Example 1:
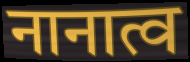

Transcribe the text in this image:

नानात्व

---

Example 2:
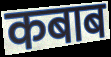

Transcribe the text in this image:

कबाब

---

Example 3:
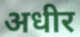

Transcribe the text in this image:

अधीर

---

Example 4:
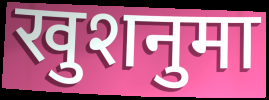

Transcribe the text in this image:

खुशनुमा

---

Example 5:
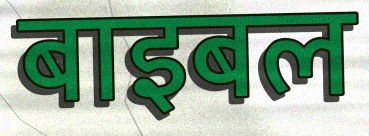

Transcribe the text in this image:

बाइबल